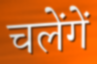
चलेंगें